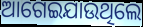
ଆଗେଇଯାଉଥିଲେ